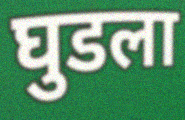
घुडला